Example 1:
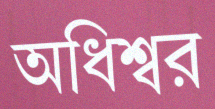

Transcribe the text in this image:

অধিশ্বর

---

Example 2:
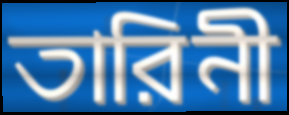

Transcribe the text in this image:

তারিনী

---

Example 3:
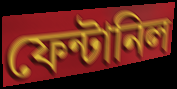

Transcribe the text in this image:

ফেন্টানিল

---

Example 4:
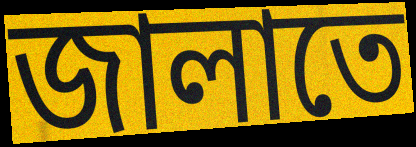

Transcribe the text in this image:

জালাতে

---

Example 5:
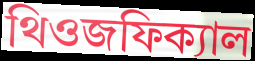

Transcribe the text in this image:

থিওজফিক্যাল